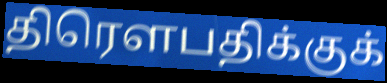
திரௌபதிக்குக்